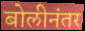
बोलीनंतर